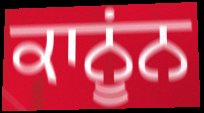
ਕਾਨੂਂਨ